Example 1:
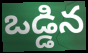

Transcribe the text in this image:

ఒడ్డిన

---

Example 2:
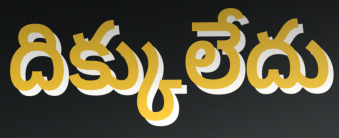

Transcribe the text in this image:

దిక్కులేదు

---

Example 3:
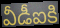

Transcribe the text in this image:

వీడీఐకి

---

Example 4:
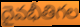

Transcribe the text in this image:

దైవభీతిగల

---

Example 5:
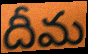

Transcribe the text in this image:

దీమ